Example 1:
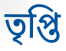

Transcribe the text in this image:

তৃপ্তি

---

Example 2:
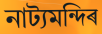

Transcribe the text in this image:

নাট্যমন্দিৰ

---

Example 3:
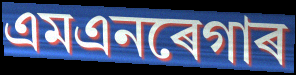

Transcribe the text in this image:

এমএনৰেগাৰ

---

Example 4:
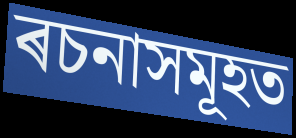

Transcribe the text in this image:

ৰচনাসমূহত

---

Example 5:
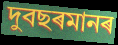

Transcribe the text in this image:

দুবছৰমানৰ